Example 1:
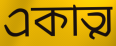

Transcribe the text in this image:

একাত্ম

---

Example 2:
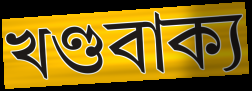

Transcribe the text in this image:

খণ্ডবাক্য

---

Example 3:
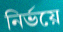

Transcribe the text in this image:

নিৰ্ভয়ে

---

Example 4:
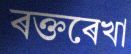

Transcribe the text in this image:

ৰক্তৰেখা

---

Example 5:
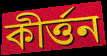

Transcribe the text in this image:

কীৰ্ত্তন